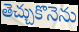
తెచ్చుకొనెను